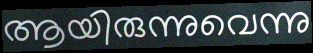
ആയിരുന്നുവെന്നു